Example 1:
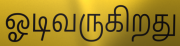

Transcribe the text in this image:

ஓடிவருகிறது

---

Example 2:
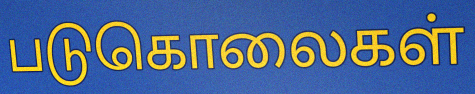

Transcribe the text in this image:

படுகொலைகள்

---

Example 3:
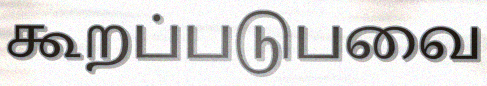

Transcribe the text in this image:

கூறப்படுபவை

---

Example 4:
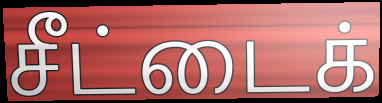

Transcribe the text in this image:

சீட்டைக்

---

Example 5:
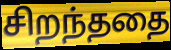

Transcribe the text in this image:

சிறந்ததை